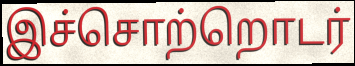
இச்சொற்றொடர்